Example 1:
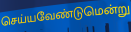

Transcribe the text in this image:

செய்யவேண்டுமென்று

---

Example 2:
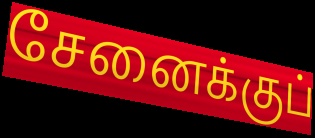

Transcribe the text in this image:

சேனைக்குப்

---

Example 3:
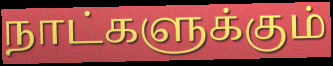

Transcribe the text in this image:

நாட்களுக்கும்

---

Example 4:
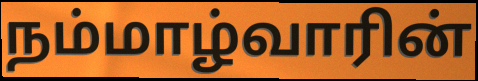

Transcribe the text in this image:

நம்மாழ்வாரின்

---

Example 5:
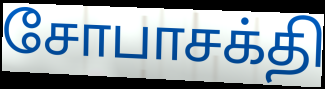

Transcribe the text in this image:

சோபாசக்தி